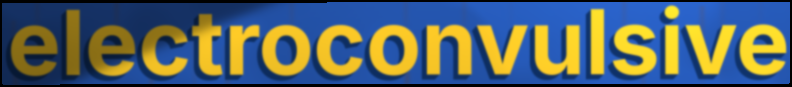
electroconvulsive